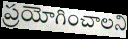
ప్రయోగించాలని